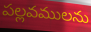
పల్లవములను